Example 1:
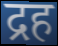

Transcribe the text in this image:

द्रह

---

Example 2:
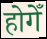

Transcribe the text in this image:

होगेँ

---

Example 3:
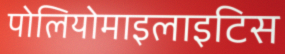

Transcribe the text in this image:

पोलियोमाइलाइटिस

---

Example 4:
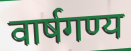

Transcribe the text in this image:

वार्षगण्य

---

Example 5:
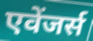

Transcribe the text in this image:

एवेंजर्स